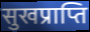
सुखप्राप्ति